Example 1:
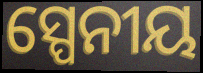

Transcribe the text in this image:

ସ୍ପେନୀୟ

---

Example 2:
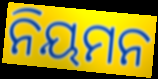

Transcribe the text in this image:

ନିୟମନ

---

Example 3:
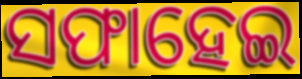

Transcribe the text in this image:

ସଫାହେଇ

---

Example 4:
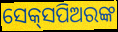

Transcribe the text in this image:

ସେକ୍‌ସପିଅରଙ୍କ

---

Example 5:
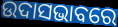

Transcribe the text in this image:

ଉଦାସଭାବରେ